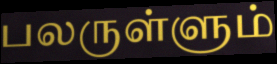
பலருள்ளும்